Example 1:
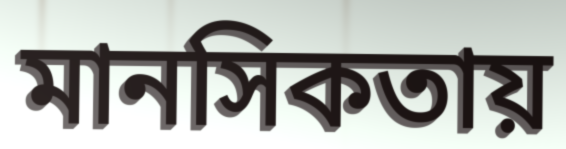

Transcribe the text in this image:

মানসিকতায়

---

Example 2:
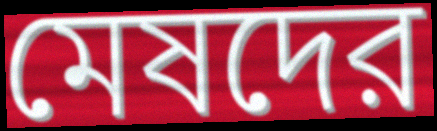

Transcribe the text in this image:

মেষদের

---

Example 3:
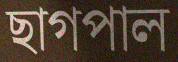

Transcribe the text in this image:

ছাগপাল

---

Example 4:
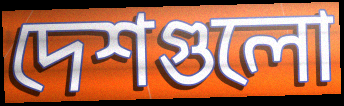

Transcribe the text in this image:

দেশগুলো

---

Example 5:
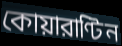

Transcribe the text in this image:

কোয়ারাণ্টিন